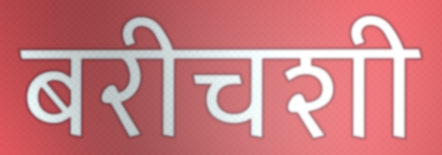
बरीचशी